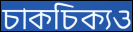
চাকচিক্যও